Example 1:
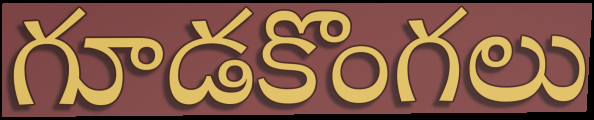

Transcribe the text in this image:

గూడకొంగలు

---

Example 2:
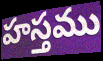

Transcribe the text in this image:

హస్తము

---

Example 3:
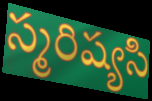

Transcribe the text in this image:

స్మరిష్యసి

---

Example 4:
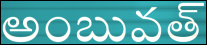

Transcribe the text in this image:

అంబువత్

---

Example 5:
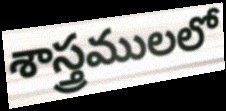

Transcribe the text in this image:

శాస్త్రములలో